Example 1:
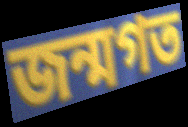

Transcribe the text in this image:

জন্মগত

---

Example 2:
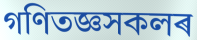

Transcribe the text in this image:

গণিতজ্ঞসকলৰ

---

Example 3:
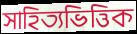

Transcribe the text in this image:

সাহিত্যভিত্তিক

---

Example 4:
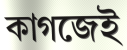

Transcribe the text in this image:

কাগজেই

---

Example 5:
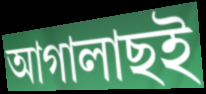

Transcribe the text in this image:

আগালাছই